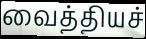
வைத்தியச்